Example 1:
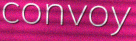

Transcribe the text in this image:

convoy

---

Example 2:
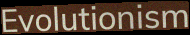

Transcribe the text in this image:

Evolutionism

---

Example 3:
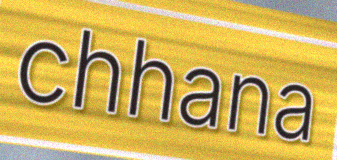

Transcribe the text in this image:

chhana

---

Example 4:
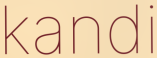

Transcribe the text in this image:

kandi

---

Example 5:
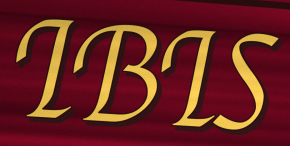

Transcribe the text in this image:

IBIS